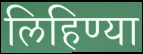
लिहिण्या